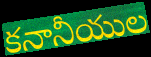
కనానీయుల